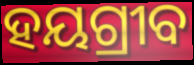
ହୟଗ୍ରୀବ